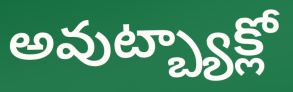
అవుట్బ్యాక్లో